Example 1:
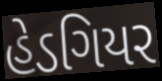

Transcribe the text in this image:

હેડગિયર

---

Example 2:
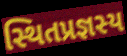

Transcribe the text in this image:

સ્થિતપ્રજ્ઞસ્ય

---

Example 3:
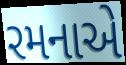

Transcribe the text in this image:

રમનાએ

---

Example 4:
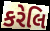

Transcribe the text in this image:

કરેલિ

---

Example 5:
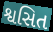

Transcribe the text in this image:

શ્વસિત